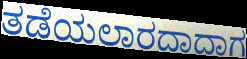
ತಡೆಯಲಾರದಾದಾಗ